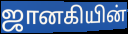
ஜானகியின்